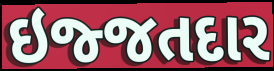
ઇજ્જતદાર